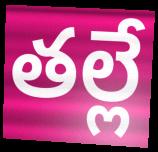
తల్లే